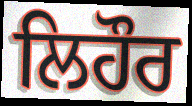
ਲਿਹੌਰ